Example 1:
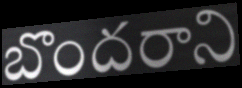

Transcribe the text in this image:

బొందరాని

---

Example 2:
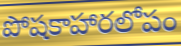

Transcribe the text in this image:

పోషకాహారలోపం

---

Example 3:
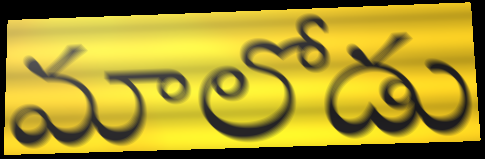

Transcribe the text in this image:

మాలోడు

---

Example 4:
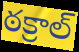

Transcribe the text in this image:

ఠక్రాల్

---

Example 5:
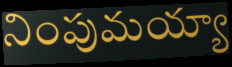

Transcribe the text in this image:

నింపుమయ్యా